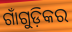
ଗାଁଗୁଡ଼ିକର